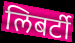
लिबर्टी